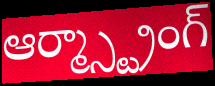
ఆర్మ్స్ట్రాంగ్